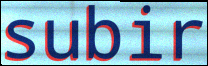
subir